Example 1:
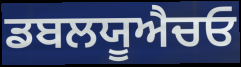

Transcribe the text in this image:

ਡਬਲਯੂਐਚਓ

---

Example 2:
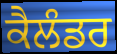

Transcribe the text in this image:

ਕੈਲੰਡਰ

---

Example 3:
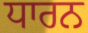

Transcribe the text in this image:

ਧਾਰਨ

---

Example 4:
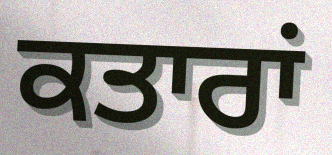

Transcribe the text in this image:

ਕਤਾਰਾਂ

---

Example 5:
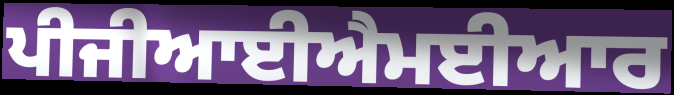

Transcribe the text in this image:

ਪੀਜੀਆਈਐਮਈਆਰ